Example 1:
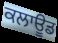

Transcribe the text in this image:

ਕਲਾਊਡ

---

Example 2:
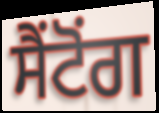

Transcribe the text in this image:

ਸੈਂਟੋਂਗ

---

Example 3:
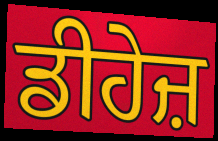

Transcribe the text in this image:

ਡੀਹੇਜ਼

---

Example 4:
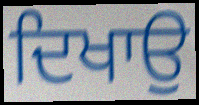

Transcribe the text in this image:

ਦਿਖਾਉ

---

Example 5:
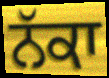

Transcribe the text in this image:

ਨੱਕਾ